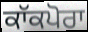
ਕਾੱਕਪੋਰਾ